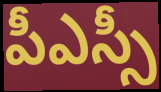
పీఎస్సీ